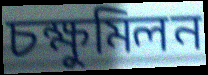
চক্ষুমিলন